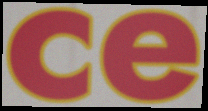
ce